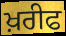
ਖ਼ਰੀਫ